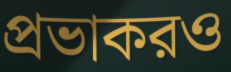
প্রভাকরও